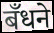
बँधने